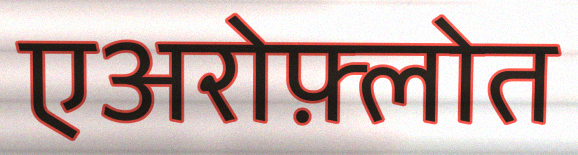
एअरोफ़्लोत